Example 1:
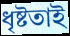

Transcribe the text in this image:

ধৃষ্টতাই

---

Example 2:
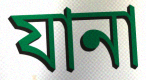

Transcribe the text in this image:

যানা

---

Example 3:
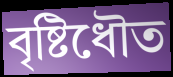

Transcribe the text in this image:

বৃষ্টিধৌত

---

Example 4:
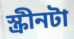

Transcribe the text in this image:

স্ক্রীনটা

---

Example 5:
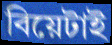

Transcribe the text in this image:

বিয়েটাই